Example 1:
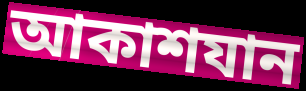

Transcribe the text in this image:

আকাশযান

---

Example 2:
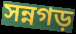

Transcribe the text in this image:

সন্নগড়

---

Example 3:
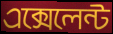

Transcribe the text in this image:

এক্সেলেন্ট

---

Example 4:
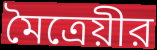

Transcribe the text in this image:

মৈত্রেয়ীর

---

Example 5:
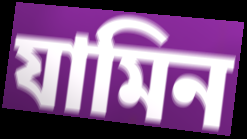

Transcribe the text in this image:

যামিন